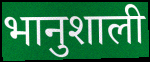
भानुशाली